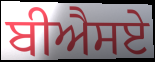
ਬੀਐਸਏ